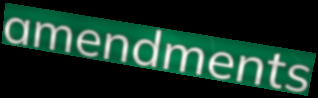
amendments